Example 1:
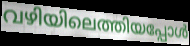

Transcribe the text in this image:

വഴിയിലെത്തിയപ്പോൾ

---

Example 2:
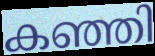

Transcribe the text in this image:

കഞ്ഞി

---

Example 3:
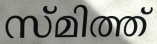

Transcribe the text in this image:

സ്മിത്ത്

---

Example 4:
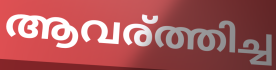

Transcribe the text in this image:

ആവര്ത്തിച്ച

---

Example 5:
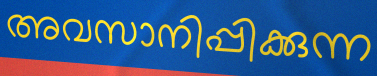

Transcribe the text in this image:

അവസാനിപ്പിക്കുന്ന